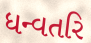
ધન્વતરિ